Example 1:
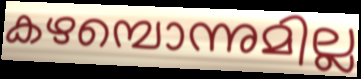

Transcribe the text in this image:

കഴമ്പൊന്നുമില്ല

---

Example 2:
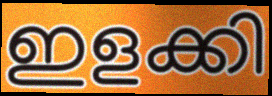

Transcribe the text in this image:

ഇളക്കി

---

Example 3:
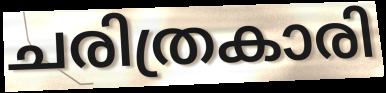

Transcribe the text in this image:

ചരിത്രകാരി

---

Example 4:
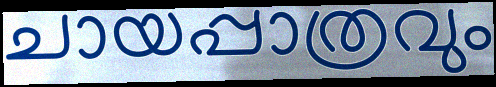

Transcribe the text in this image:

ചായപ്പാത്രവും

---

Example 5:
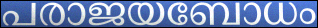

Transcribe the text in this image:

പരാജയബോധം